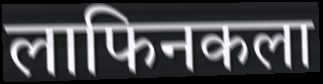
लाफिनकला